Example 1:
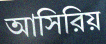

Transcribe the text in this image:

আসিরিয়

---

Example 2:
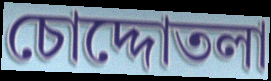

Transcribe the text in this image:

চোদ্দোতলা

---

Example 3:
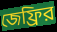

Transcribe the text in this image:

জেফ্রির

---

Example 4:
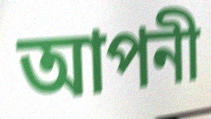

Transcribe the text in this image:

আপনী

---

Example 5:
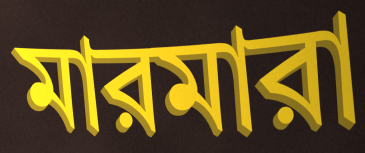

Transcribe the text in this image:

মারমারা